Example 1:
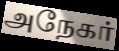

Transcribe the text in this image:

அநேகர்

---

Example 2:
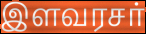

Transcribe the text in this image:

இளவரசர்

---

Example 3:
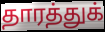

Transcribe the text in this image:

தாரத்துக்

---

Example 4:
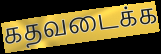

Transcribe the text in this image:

கதவடைக்க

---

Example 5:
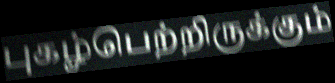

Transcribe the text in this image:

புகழ்பெற்றிருக்கும்